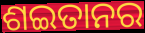
ଶଇତାନର